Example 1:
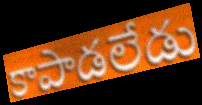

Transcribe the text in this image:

కాపాడలేడు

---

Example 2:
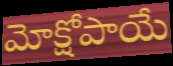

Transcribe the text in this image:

మోక్షోపాయే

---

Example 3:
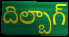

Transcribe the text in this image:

దిల్బాగ్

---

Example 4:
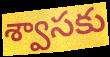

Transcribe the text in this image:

శ్వాసకు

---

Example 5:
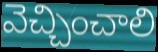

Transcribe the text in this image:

వెచ్చించాలి